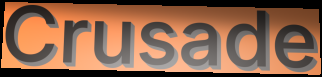
Crusade